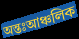
অন্তঃআঞ্চলিক